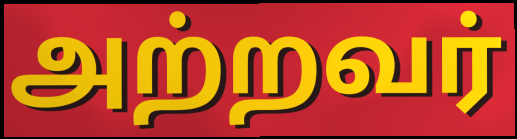
அற்றவர்